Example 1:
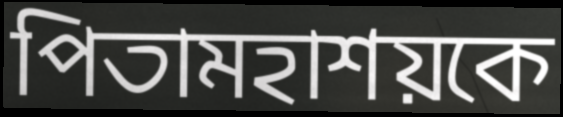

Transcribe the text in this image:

পিতামহাশয়কে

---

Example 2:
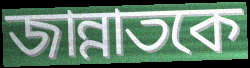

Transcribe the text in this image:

জান্নাতকে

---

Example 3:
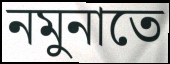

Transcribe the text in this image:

নমুনাতে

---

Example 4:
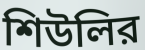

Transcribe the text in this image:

শিউলির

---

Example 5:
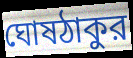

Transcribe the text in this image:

ঘোষঠাকুর